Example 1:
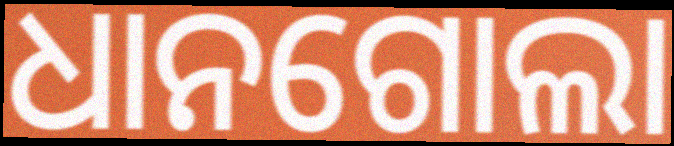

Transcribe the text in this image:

ଧାନଗୋଲା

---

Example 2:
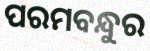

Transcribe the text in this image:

ପରମବନ୍ଧୁର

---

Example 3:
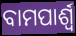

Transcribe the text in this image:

ବାମପାର୍ଶ୍ଵ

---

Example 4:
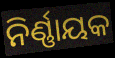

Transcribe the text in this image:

ନିର୍ଣ୍ଣାୟକ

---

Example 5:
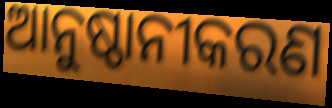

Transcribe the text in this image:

ଆନୁଷ୍ଠାନୀକରଣ